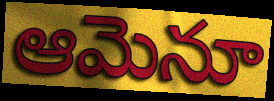
ఆమెనూ